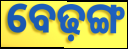
ବେଢ଼ଙ୍ଗ